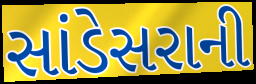
સાંડેસરાની